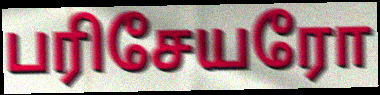
பரிசேயரோ